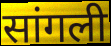
सांगली